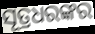
ସୂତ୍ରଧରଙ୍କର